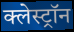
क्लेस्ट्रॉन